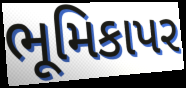
ભૂમિકાપર